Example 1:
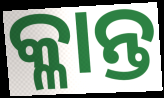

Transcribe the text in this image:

କ୍ଳାନ୍ତ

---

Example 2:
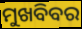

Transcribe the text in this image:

ମୁଖବିବର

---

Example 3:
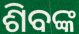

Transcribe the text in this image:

ଶିବଙ୍କ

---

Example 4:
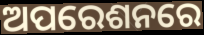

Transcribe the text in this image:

ଅପରେଶନରେ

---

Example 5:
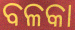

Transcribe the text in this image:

ବଳକା